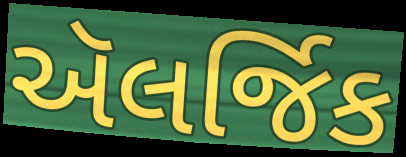
ઍલર્જિક